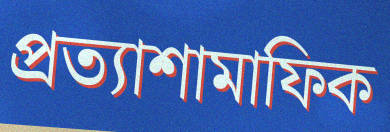
প্রত্যাশামাফিক